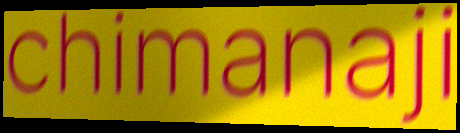
chimanaji